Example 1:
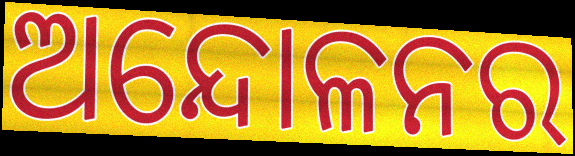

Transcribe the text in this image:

ଅନ୍ଦୋଳନର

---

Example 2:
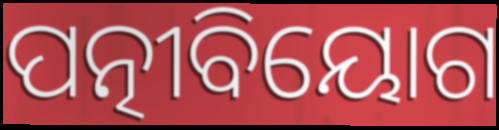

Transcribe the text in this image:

ପତ୍ନୀବିୟୋଗ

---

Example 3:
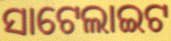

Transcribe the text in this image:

ସାଟେଲାଇଟ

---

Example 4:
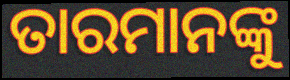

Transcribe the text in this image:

ତାରମାନଙ୍କୁ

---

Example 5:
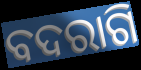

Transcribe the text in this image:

ବଦରାଗି